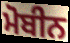
ਮੋਬੀਨ